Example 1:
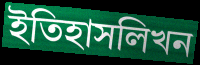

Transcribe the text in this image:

ইতিহাসলিখন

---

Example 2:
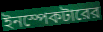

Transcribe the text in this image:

ইনস্পেকটারের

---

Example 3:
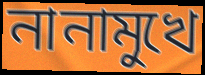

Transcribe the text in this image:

নানামুখে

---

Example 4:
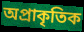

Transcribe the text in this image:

অপ্রাকৃতিক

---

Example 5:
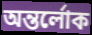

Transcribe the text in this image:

অন্তর্লোক